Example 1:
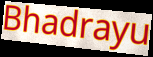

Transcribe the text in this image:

Bhadrayu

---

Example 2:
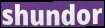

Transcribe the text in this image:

shundor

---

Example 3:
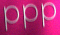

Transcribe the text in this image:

ppp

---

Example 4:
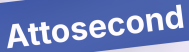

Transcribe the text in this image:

Attosecond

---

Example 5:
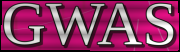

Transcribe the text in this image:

GWAS